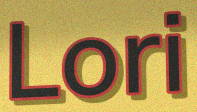
Lori